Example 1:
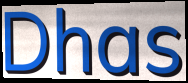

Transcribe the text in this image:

Dhas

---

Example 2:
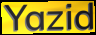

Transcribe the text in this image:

Yazid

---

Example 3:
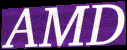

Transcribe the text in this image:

AMD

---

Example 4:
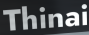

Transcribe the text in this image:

Thinai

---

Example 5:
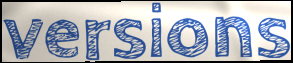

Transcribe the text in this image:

versions